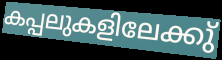
കപ്പലുകളിലേക്കു്